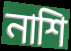
নাশি